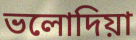
ভলোদিয়া